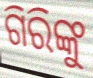
ଗିରିଙ୍କୁ